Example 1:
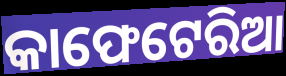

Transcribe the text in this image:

କାଫେଟେରିଆ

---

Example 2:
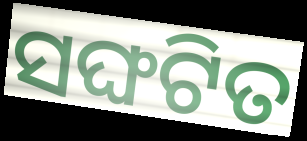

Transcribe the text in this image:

ସଙ୍ଘଟିତ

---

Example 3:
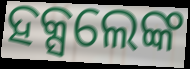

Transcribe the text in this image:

ହକ୍ସଲେଙ୍କ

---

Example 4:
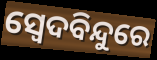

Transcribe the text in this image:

ସ୍ୱେଦବିନ୍ଦୁରେ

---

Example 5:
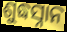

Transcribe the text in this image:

ଶୁଦ୍ଧସ୍ନାନ